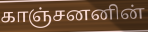
காஞ்சனனின்